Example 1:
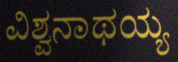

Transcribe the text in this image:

ವಿಶ್ವನಾಥಯ್ಯ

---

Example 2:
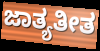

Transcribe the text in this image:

ಜಾತ್ಯತೀತ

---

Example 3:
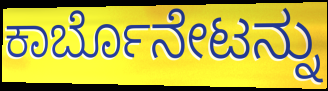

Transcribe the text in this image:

ಕಾರ್ಬೊನೇಟನ್ನು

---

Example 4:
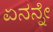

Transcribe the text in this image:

ಏನನ್ನೇ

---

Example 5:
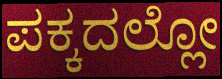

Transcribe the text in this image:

ಪಕ್ಕದಲ್ಲೋ